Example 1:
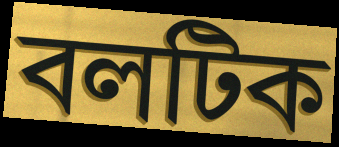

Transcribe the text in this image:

বলটিক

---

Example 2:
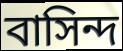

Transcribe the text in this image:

বাসিন্দ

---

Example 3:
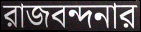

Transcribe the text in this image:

রাজবন্দনার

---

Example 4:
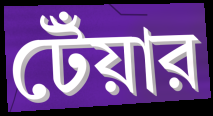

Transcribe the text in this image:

টেঁয়ার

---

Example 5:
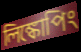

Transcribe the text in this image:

লিঙ্কোপিং